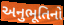
અનુભૂતિનો